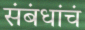
संबंधांचं